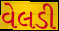
વેલડી